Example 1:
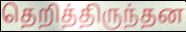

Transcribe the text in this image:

தெறித்திருந்தன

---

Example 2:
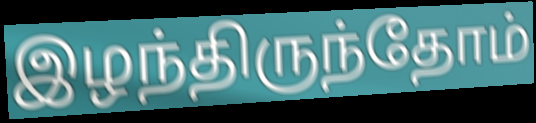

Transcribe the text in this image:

இழந்திருந்தோம்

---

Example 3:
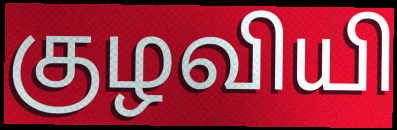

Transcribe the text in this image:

குழவியி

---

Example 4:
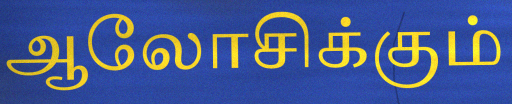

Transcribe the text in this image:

ஆலோசிக்கும்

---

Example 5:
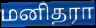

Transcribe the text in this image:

மனிதரா